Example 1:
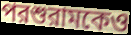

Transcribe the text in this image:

পরশুরামকেও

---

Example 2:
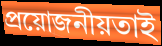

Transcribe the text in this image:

প্রয়োজনীয়তাই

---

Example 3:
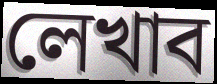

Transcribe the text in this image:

লেখাব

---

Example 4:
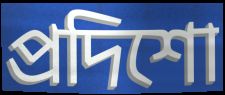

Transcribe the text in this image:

প্রদিশো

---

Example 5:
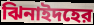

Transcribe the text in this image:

ঝিনাইদহের